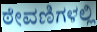
ಠೇವಣಿಗಳಲ್ಲಿ